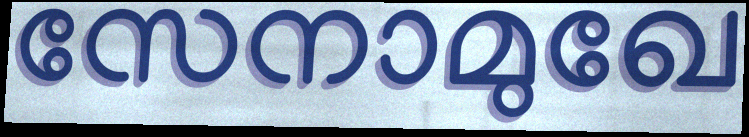
സേനാമുഖേ